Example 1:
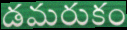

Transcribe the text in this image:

డమరుకం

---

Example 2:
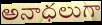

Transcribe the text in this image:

అనాధలుగా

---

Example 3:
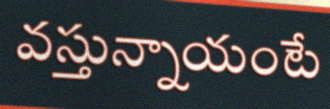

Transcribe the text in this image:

వస్తున్నాయంటే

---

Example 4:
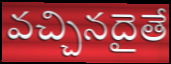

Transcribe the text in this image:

వచ్చినదైతే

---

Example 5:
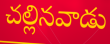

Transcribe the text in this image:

చల్లినవాడు